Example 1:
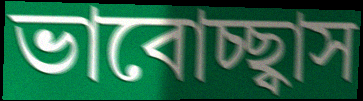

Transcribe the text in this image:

ভাবোচ্ছ্বাস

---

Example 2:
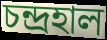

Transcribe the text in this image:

চন্দ্ৰহাল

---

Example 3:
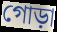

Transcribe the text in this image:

গোড়া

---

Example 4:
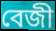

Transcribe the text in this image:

বেজী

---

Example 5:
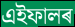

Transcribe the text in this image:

এইফালৰ